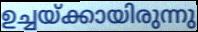
ഉച്ചയ്ക്കായിരുന്നു